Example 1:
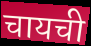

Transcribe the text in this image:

चायची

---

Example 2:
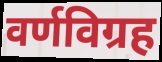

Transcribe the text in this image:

वर्णविग्रह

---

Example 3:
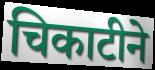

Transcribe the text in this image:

चिकाटीने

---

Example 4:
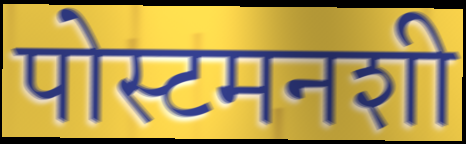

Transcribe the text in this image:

पोस्टमनशी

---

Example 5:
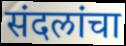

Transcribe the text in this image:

संदलांचा